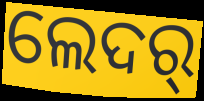
ଲେଦର୍